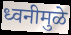
ध्वनीमुळे